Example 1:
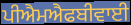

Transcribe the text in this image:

ਪੀਐਮਐਫਬੀਵਾਈ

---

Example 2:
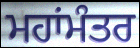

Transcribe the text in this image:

ਮਹਾਂਮੰਤਰ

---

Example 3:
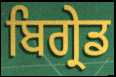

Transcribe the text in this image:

ਬਿਗ੍ਰੇਡ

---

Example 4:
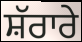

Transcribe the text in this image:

ਸ਼ੱਰਾਰੇ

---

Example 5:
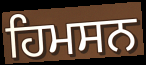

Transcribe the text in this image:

ਹਿਮਸਨ